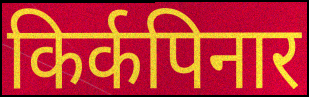
किर्कपिनार